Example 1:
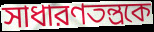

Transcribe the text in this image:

সাধারণতন্ত্রকে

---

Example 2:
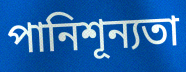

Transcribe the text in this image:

পানিশূন্যতা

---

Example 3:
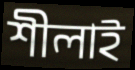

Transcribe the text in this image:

শীলাই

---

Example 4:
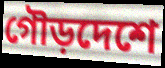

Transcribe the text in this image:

গৌড়দেশে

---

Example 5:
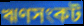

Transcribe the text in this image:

ঋণসংকট